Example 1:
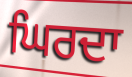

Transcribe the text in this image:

ਘਿਰਦਾ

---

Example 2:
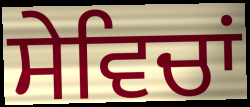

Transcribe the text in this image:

ਸੇਵਿਚਾਂ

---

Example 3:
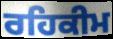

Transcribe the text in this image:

ਰਹਿਕੀਮ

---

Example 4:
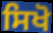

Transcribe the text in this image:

ਸਿਖੋ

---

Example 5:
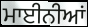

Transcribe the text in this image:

ਮਾਈਨੀਆਂ